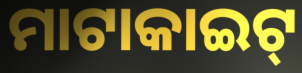
ମାଟାକାଇଟ୍